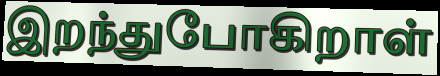
இறந்துபோகிறாள்